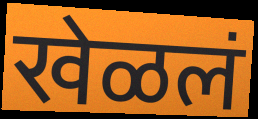
खेळलं